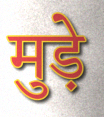
मुड़े